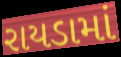
રાયડામાં